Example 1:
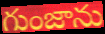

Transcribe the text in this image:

గుంజాను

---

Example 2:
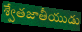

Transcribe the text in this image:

శ్వేతజాతీయుడు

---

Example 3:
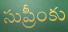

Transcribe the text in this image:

సుప్రీంకు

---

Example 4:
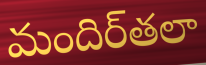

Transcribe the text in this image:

మందిర్‌తలా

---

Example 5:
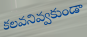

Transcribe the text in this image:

కలవనివ్వకుండా